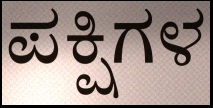
ಪಕ್ಷಿಗಳ